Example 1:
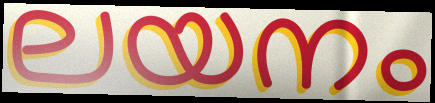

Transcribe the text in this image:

ലയനം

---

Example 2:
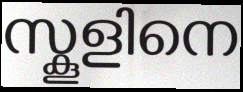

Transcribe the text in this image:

സ്കൂളിനെ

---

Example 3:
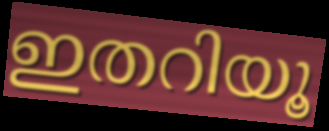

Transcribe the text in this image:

ഇതറിയൂ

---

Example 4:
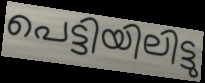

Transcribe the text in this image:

പെട്ടിയിലിട്ടു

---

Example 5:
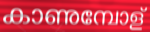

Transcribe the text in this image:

കാണുമ്പോള്